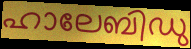
ഹാലേബിഡു